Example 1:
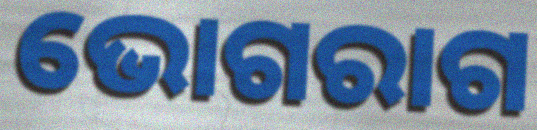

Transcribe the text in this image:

ଭୋଗରାଗ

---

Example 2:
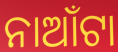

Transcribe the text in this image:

ନାଆଁଟା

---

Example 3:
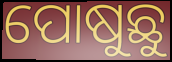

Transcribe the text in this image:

ପୋଷୁଛୁ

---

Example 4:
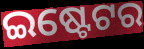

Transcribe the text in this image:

ଇଷ୍ଟେଟର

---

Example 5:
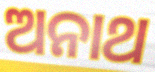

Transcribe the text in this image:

ଅନାଥ